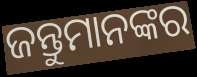
ଜନ୍ତୁମାନଙ୍କର